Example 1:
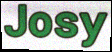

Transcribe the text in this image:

Josy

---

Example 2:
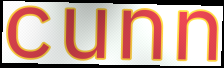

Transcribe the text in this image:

cunn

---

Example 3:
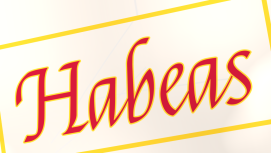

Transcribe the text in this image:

Habeas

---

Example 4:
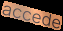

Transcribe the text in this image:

accede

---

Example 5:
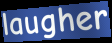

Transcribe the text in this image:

laugher